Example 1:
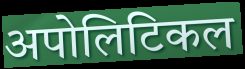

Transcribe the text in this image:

अपोलिटिकल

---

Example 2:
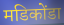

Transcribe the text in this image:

मडिकोंडा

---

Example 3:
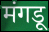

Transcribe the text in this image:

मंगडू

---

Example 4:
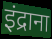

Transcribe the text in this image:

इंद्राना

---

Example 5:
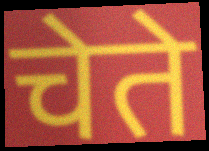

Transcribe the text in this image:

चेते